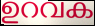
ഉറവക